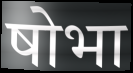
षोभा